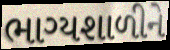
ભાગ્યશાળીને